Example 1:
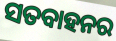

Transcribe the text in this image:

ସତବାହନର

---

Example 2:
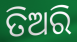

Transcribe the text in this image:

ତିଅରି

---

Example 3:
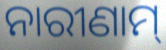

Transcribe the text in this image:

ନାରୀଣାମ୍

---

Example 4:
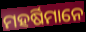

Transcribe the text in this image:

ମହର୍ଷିମାନେ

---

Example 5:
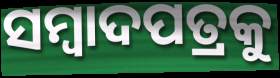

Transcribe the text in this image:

ସମ୍ବାଦପତ୍ରକୁ